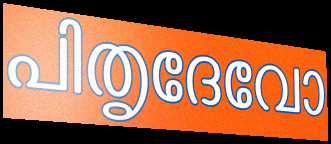
പിതൃദേവോ